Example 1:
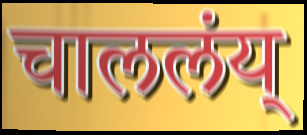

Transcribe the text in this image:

चाललंय्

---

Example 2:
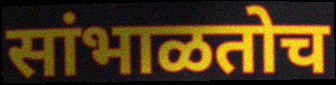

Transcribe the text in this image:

सांभाळतोच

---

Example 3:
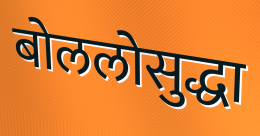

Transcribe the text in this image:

बोललोसुद्धा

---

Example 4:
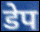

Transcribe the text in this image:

डेप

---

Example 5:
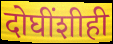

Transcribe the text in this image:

दोघींशीही